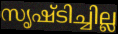
സൃഷ്ടിച്ചില്ല